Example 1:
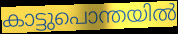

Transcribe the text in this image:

കാട്ടുപൊന്തയിൽ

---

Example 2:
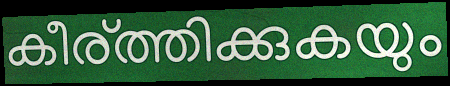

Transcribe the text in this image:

കീര്ത്തിക്കുകയും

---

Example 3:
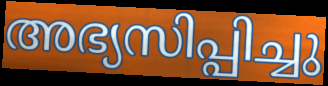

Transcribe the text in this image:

അഭ്യസിപ്പിച്ചു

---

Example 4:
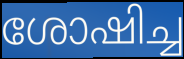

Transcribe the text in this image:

ശോഷിച്ച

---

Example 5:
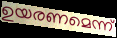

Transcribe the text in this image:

ഉയരണമെന്ന്